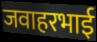
जवाहरभाई